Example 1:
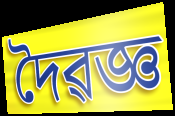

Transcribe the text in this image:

দৈৱজ্ঞ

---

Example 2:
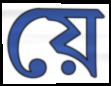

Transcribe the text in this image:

য়ে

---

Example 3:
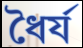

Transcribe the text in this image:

ধৈৰ্য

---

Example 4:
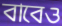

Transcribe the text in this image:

বাবেও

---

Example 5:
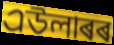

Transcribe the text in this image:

এউলাৰৰ